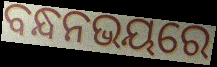
ବନ୍ଧନଭୟରେ